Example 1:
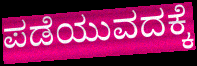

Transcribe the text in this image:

ಪಡೆಯುವದಕ್ಕೆ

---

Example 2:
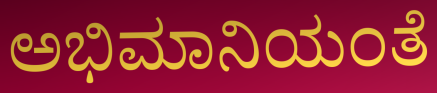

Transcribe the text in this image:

ಅಭಿಮಾನಿಯಂತೆ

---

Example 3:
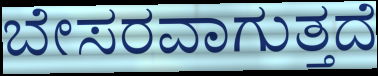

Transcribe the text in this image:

ಬೇಸರವಾಗುತ್ತದೆ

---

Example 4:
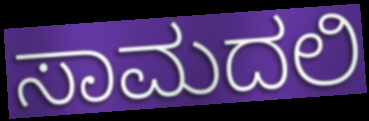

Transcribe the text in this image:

ಸಾಮದಲಿ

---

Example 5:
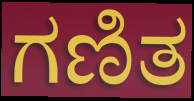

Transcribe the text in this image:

ಗಣಿತ